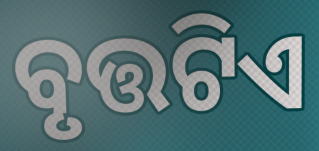
ବୃତ୍ତଟିଏ